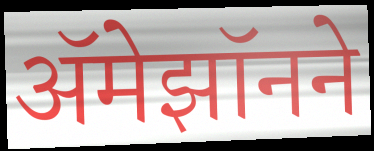
ॲमेझॉनने